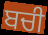
ਬਚੀ